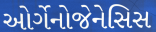
ઓર્ગેનોજેનેસિસ